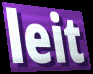
leit